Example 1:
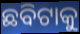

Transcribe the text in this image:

ଛବିଟାକୁ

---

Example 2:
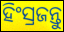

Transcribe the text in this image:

ହିଂସ୍ରଜନ୍ତୁ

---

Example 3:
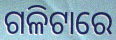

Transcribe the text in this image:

ଗଳିଟାରେ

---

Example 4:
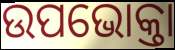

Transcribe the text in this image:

ଉପଭୋକ୍ତା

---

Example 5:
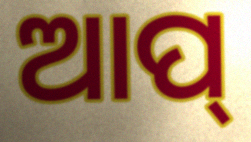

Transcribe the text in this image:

ଆପ୍